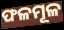
ଫଳମୂଳ